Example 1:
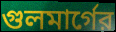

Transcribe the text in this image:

গুলমার্গের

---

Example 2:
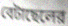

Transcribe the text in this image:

বেটাছেলের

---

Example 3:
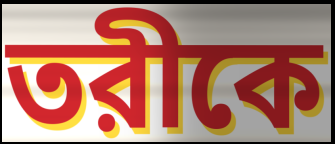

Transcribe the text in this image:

তরীকে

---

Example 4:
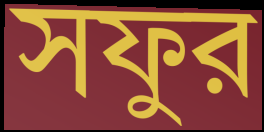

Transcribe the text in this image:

সফুর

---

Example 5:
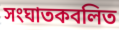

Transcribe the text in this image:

সংঘাতকবলিত